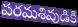
పరమశివుడికి